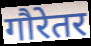
गौरेतर